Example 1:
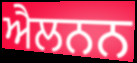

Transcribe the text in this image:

ਐਲਨਨ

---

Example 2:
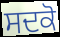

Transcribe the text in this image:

ਸਦਕੋ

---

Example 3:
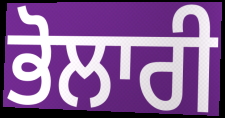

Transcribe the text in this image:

ਭੋਲਾਰੀ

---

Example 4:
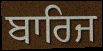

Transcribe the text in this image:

ਬਾਰਿਜ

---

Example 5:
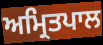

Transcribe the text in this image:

ਅਮ੍ਰਿਤਪਾਲ